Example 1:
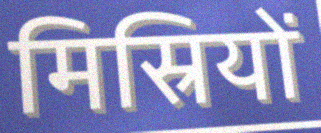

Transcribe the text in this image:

मिस्रियों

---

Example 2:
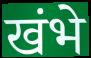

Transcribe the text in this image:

खंभे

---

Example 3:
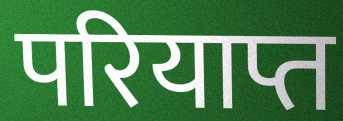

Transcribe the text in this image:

परियाप्त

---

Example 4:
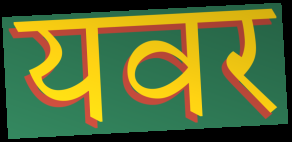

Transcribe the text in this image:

यवर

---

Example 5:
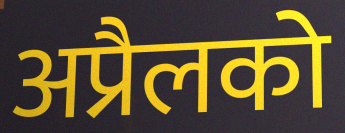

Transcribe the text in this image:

अप्रैलको